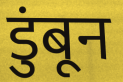
डुंबून